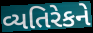
વ્યતિરેકને